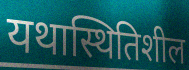
यथास्थितिशील